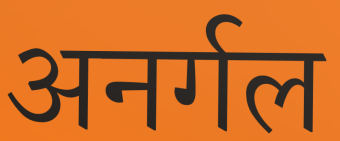
अनर्गल